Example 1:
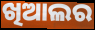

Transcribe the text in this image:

ଖିଆଲର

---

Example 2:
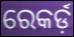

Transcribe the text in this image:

ରେକର୍ଡ଼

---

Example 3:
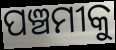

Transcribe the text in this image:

ପଞ୍ଚମୀକୁ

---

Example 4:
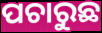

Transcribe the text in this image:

ପଚାରୁଛ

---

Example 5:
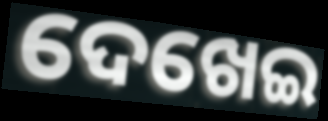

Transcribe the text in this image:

ଦେଖେଇ